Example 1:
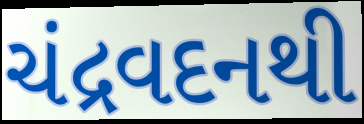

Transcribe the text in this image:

ચંદ્રવદનથી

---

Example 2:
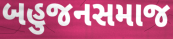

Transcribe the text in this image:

બહુજનસમાજ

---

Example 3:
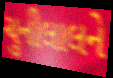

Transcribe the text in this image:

ચુનીલાલને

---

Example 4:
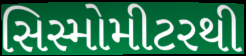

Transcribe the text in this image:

સિસ્મોમીટરથી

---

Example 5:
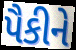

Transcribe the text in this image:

પૈકીને